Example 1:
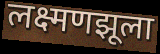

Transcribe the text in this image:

लक्ष्मणझूला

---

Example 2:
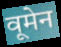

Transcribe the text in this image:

वूमेन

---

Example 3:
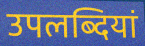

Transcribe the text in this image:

उपलब्दियां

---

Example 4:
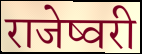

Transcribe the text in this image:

राजेष्वरी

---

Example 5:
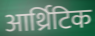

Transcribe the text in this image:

आर्थ्रिटिक